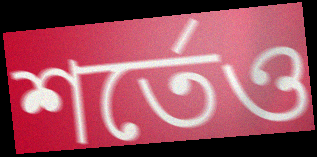
শর্তেও